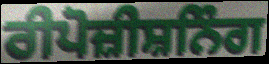
ਰੀਪੋਜ਼ੀਸ਼ਨਿੰਗ